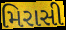
મિરાસી